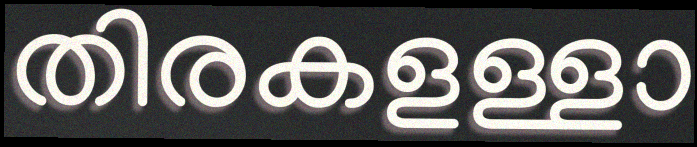
തിരകളള്ളാ